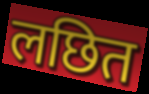
लछित